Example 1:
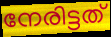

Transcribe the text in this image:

നേരിട്ടത്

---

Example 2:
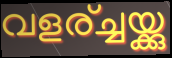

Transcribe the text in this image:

വളര്ച്ചയ്ക്കു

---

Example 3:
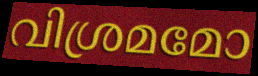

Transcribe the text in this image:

വിശ്രമമോ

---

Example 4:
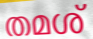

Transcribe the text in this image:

തമശ്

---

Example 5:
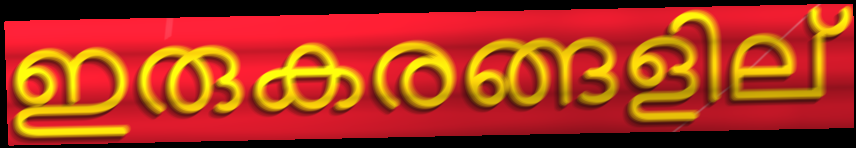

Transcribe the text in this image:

ഇരുകരങ്ങളില്